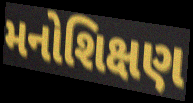
મનોશિક્ષણ